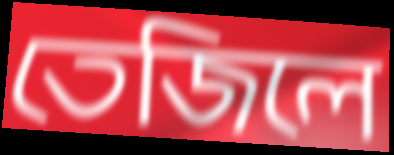
তেজিলে